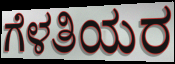
ಗೆಳತಿಯರ